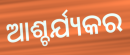
ଆଶ୍ଚର୍ଯ୍ୟକର